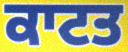
ਕਾਟਤ